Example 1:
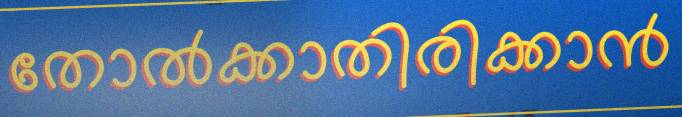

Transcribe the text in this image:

തോൽക്കാതിരിക്കാൻ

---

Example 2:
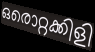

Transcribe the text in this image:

ഒരൊറ്റക്കിളി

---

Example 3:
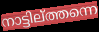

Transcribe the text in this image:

നാട്ടില്ത്തന്നെ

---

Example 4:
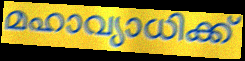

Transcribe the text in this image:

മഹാവ്യാധിക്ക്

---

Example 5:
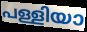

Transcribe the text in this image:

പള്ളിയാ